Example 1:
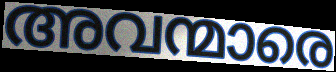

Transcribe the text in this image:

അവന്മാരെ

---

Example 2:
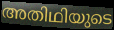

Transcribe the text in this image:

അതിഥിയുടെ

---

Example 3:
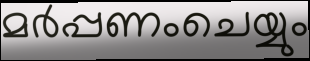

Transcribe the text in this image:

മർപ്പണംചെയ്യും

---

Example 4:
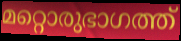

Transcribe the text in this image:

മറ്റൊരുഭാഗത്ത്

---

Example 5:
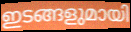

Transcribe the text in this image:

ഇടങ്ങളുമായി